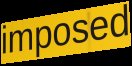
imposed